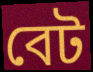
বেট